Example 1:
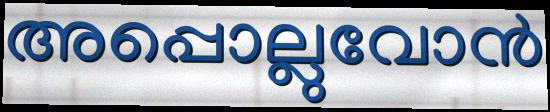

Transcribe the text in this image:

അപ്പൊല്ലുവോൻ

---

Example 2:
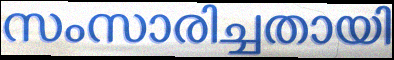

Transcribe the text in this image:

സംസാരിച്ചതായി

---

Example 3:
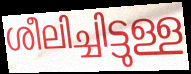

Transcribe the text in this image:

ശീലിച്ചിട്ടുള്ള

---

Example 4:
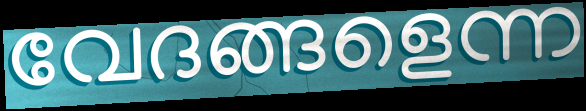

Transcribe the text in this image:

വേദങ്ങളെന്ന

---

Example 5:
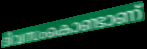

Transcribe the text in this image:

ദിവസംകൊണ്ടാണ്